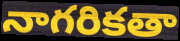
నాగరికతా